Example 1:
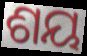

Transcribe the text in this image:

ଶୟ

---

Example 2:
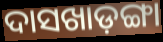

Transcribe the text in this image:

ଦାସଖାଡ଼ଙ୍ଗା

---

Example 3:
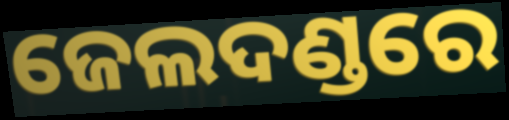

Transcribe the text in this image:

ଜେଲଦଣ୍ଡରେ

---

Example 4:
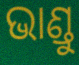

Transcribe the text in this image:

ଭାଣ୍ଡୁ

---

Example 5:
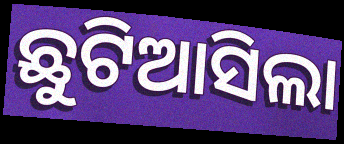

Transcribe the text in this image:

ଛୁଟିଆସିଲା